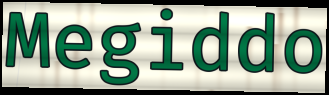
Megiddo